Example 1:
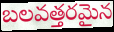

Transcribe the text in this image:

బలవత్తరమైన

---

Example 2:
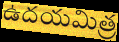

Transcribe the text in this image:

ఉదయమిత్ర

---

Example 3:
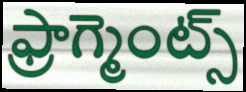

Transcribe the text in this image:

ఫ్రాగ్మెంట్స్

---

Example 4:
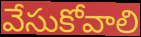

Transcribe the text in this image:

వేసుకోవాలి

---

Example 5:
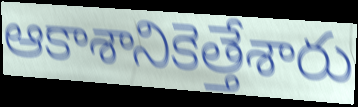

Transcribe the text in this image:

ఆకాశానికెత్తేశారు